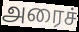
அரைச்